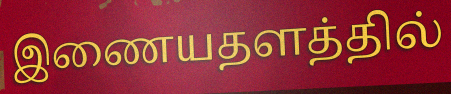
இணையதளத்தில்